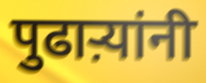
पुढाऱ्‍यांनी